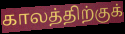
காலத்திற்குக்